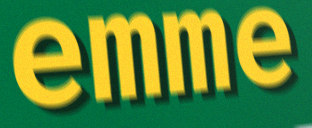
emme